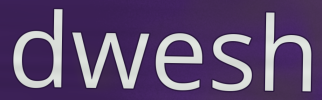
dwesh